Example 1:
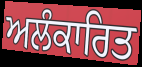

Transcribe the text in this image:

ਅਲੰਕਾਰਿਤ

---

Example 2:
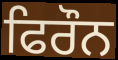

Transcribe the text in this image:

ਫਿਰੌਨ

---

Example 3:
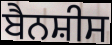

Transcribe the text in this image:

ਬੈਨਸ਼ੀਸ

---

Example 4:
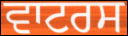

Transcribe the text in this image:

ਵਾਟਰਸ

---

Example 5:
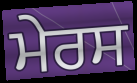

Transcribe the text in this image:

ਮੇਰਸ